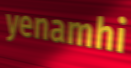
yenamhi